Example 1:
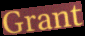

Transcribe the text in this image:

Grant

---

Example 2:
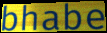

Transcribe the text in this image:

bhabe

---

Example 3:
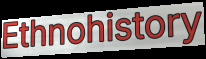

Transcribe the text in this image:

Ethnohistory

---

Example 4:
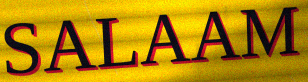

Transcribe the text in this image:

SALAAM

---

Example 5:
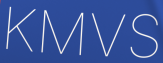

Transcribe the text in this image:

KMVS